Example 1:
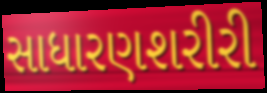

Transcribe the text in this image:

સાધારણશરીરી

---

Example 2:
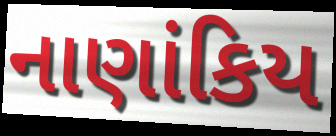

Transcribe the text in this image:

નાણાંકિય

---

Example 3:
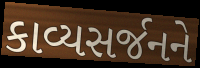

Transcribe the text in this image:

કાવ્યસર્જનને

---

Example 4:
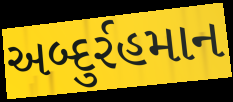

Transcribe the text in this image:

અબ્દુર્રહમાન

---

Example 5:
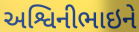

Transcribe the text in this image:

અશ્વિનીભાઇને